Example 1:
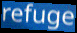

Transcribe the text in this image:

refuge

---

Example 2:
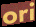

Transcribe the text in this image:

ori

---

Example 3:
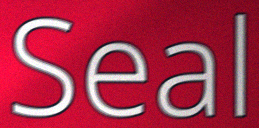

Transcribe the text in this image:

Seal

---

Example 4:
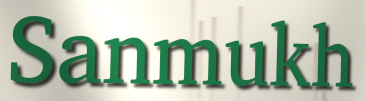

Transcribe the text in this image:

Sanmukh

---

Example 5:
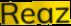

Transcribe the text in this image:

Reaz